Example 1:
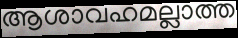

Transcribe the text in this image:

ആശാവഹമല്ലാത്ത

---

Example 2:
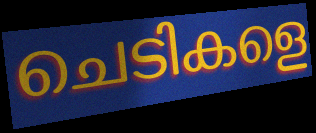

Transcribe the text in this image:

ചെടികളെ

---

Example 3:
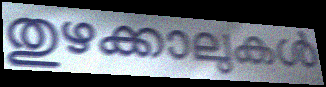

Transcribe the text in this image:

തുഴക്കാലുകൾ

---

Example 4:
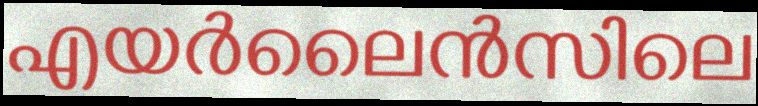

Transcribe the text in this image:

എയർലൈൻസിലെ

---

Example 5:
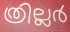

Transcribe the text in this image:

ത്രില്ലർ